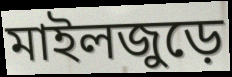
মাইলজুড়ে